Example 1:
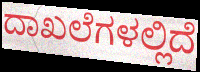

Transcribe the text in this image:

ದಾಖಲೆಗಳಲ್ಲಿದೆ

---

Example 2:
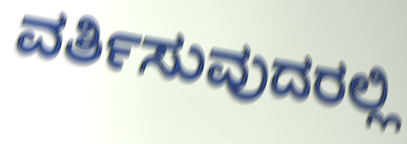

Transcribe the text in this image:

ವರ್ತಿಸುವುದರಲ್ಲಿ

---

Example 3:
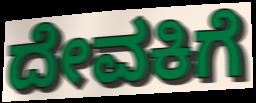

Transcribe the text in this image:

ದೇವಕಿಗೆ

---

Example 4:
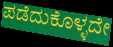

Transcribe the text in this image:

ಪಡೆದುಕೊಳ್ಳದೇ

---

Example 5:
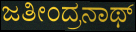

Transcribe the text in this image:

ಜತೀಂದ್ರನಾಥ್